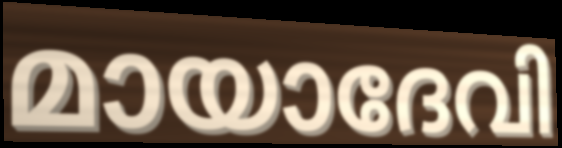
മായാദേവി